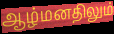
ஆழ்மனதிலும்